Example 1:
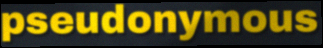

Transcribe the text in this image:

pseudonymous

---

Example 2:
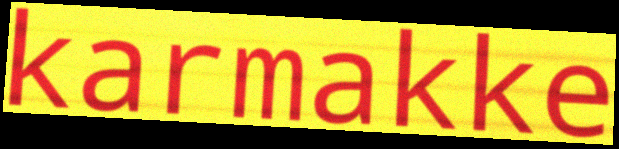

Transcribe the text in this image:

karmakke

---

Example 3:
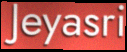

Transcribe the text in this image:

Jeyasri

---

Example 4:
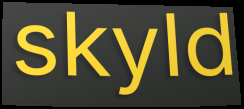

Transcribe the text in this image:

skyld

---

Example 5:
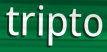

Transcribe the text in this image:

tripto